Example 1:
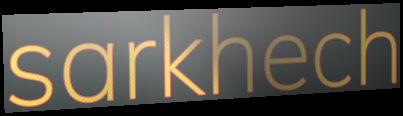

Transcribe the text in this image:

sarkhech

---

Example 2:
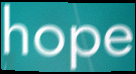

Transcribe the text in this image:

hope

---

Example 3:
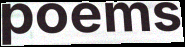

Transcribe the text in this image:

poems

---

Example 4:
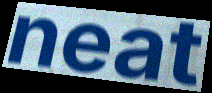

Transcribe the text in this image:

neat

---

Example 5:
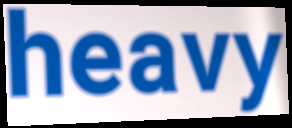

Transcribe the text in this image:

heavy